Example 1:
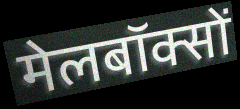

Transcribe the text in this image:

मेलबॉक्सों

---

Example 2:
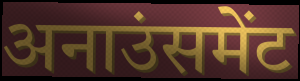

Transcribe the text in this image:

अनाउंसमेंट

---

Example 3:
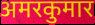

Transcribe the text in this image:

अमरकुमार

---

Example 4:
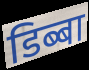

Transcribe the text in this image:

डिब्बा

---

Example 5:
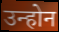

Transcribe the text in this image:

उन्होन